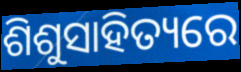
ଶିଶୁସାହିତ୍ୟରେ